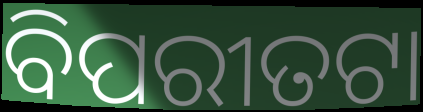
ବିପରୀତଟା